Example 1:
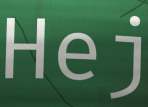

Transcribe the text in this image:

Hej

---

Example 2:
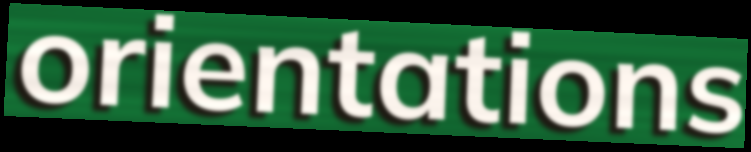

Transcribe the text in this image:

orientations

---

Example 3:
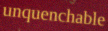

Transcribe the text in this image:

unquenchable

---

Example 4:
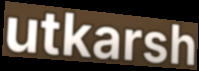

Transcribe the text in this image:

utkarsh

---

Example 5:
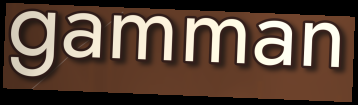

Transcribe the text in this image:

gamman